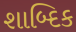
શાબ્દિક